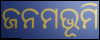
ଜନମଭୂମି